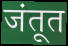
जंतूत